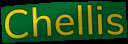
Chellis